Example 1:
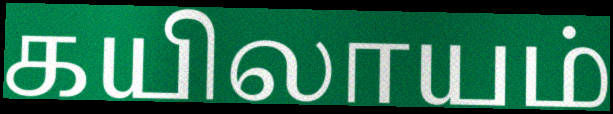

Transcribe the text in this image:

கயிலாயம்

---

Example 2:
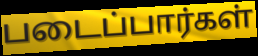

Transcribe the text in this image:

படைப்பார்கள்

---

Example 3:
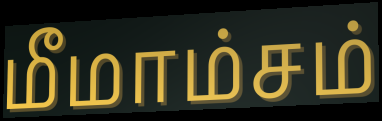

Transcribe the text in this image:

மீமாம்சம்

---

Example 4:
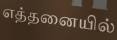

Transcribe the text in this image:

எத்தனையில்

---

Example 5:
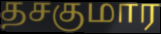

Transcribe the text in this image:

தசகுமார